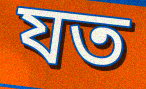
যত